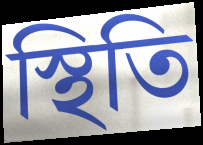
স্থিতি